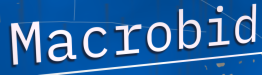
Macrobid